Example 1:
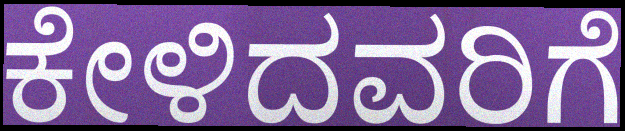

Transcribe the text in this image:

ಕೇಳಿದವರಿಗೆ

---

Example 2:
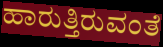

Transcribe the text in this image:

ಹಾರುತ್ತಿರುವಂತೆ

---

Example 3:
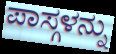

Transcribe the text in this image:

ಪಾಸ್ಗಳನ್ನು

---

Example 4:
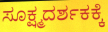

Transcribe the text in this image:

ಸೂಕ್ಷ್ಮದರ್ಶಕಕ್ಕೆ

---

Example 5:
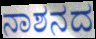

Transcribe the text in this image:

ನಾಶನದ